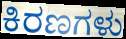
ಕಿರಣಗಳು